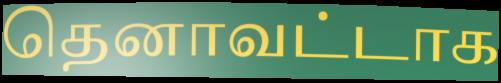
தெனாவட்டாக